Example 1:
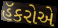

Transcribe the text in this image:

હૅકરોએ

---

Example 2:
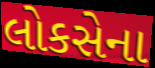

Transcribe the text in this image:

લોકસેના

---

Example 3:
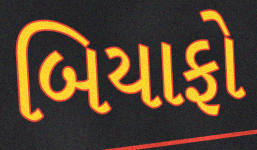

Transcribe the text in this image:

બિયાફો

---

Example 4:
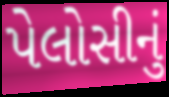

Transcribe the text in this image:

પેલોસીનું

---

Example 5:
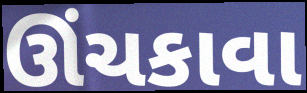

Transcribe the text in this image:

ઊંચકાવા